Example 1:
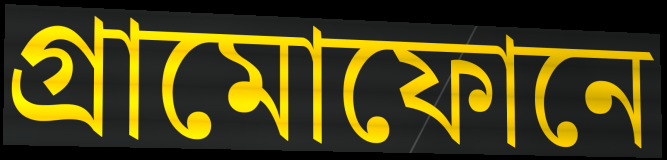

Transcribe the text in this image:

গ্রামোফোনে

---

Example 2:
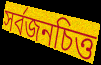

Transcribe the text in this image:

সর্বজনচিত্ত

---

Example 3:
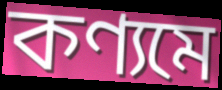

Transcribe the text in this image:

কণ্যমে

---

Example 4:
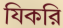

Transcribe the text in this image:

যিকরি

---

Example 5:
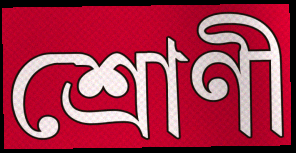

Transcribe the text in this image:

শ্রোণী